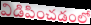
విడిపించడంలో